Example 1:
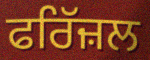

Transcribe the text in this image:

ਫਰਿੱਜ਼ਲ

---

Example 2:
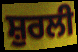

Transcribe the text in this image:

ਸ਼ੁਰਲੀ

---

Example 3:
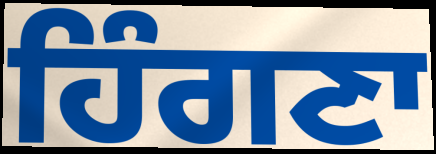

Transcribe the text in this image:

ਹਿੰਗਣਾ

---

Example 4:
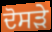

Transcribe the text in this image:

ਦੋਸੜੇ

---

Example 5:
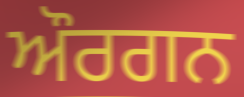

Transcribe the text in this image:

ਔਰਗਨ